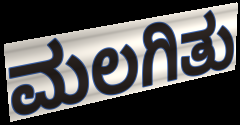
ಮಲಗಿತು